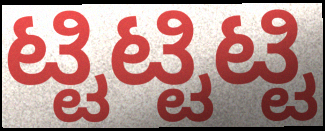
ಟ್ಟಿಟ್ಟಿಟ್ಟಿ